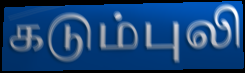
கடும்புலி